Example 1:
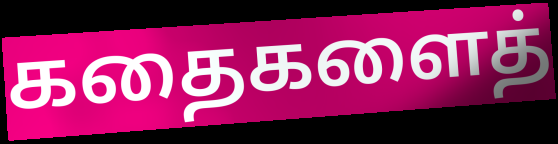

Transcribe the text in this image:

கதைகளைத்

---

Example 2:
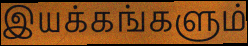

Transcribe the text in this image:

இயக்கங்களும்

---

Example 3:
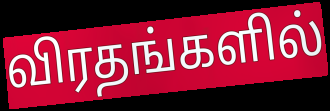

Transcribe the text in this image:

விரதங்களில்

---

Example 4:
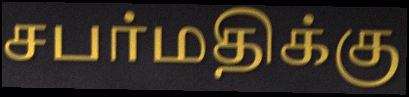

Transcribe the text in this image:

சபர்மதிக்கு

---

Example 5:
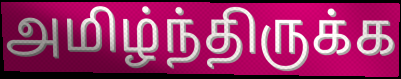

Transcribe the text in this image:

அமிழ்ந்திருக்க